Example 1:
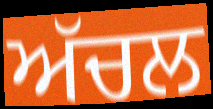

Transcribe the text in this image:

ਅੱਚਲ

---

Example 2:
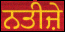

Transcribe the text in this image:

ਨਤੀਜ਼ੇ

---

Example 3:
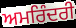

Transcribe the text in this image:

ਅਮਰਿੰਦਰੀ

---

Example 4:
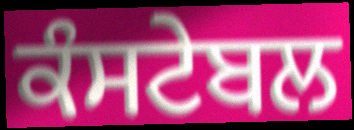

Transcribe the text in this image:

ਕੰਸਟੇਬਲ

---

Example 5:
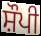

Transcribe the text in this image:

ਸ਼ੌਪੀ